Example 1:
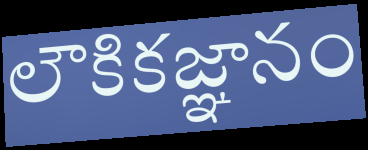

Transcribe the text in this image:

లౌకికజ్ఞానం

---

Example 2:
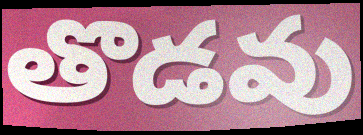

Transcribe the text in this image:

తొడవు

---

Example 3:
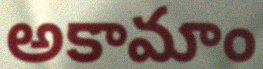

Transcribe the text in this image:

అకామాం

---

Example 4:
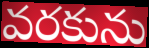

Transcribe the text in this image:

వరకును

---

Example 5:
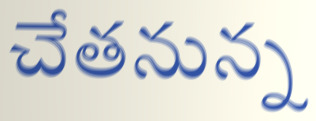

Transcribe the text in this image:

చేతనున్న